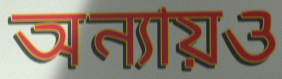
অন্যায়ও